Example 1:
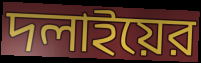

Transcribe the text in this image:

দলাইয়ের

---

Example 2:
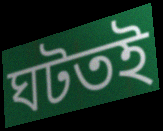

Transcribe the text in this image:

ঘটতই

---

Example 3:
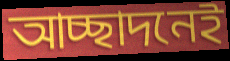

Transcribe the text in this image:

আচ্ছাদনেই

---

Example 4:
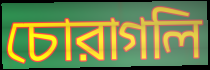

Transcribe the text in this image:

চোরাগলি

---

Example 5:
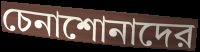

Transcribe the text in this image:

চেনাশোনাদের